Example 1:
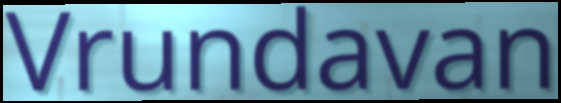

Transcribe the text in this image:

Vrundavan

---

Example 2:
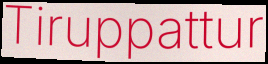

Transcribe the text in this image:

Tiruppattur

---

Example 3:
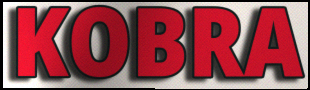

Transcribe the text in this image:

KOBRA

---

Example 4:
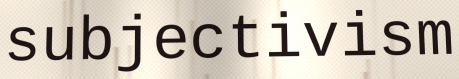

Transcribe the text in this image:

subjectivism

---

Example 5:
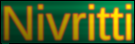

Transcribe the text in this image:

Nivritti